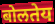
बोलतेय